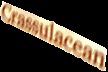
Crassulacean